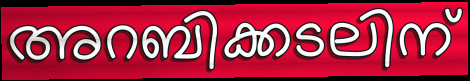
അറബിക്കടലിന്